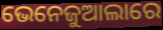
ଭେନେଜୁଆଲାରେ